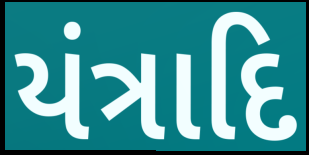
યંત્રાદિ